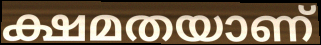
ക്ഷമതയാണ്